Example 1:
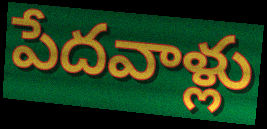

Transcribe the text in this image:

పేదవాళ్లు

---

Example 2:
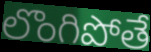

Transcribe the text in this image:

లొంగిపోతే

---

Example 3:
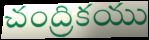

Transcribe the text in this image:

చంద్రికయు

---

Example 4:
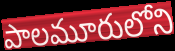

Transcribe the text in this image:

పాలమూరులోని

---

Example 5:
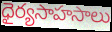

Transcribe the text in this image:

ధైర్యసాహసాలు